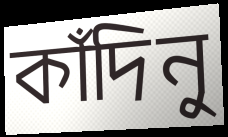
কাঁদিনু